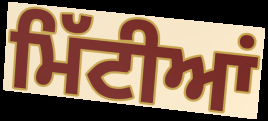
ਮਿੱਟੀਆਂ